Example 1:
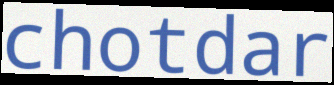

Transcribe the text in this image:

chotdar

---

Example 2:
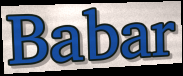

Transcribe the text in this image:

Babar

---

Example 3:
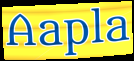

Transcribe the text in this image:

Aapla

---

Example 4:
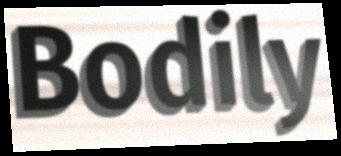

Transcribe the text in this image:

Bodily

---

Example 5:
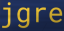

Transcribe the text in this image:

jgre